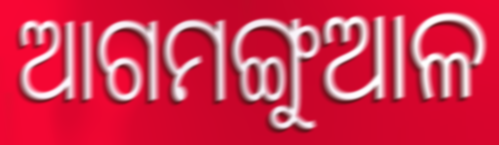
ଆଗମଙ୍ଗୁଆଳ